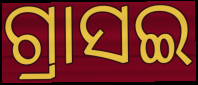
ଗ୍ରାସଇ